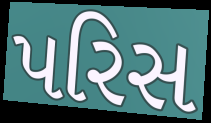
પરિસ